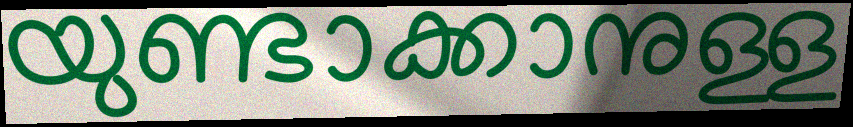
യുണ്ടാക്കാനുള്ള